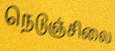
நெடுஞ்சிலை